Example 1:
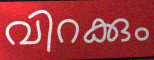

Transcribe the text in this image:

വിറക്കും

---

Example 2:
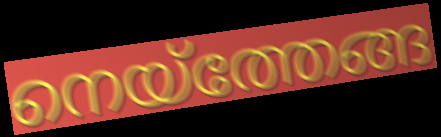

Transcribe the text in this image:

നെയ്ത്തേങ്ങ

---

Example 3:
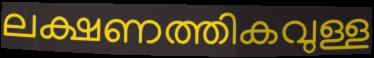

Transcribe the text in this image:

ലക്ഷണത്തികവുള്ള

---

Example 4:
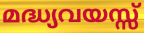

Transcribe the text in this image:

മദ്ധ്യവയസ്സ്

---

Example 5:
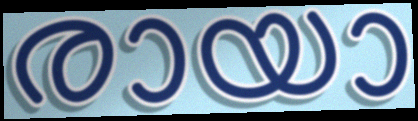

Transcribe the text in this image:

രായാ